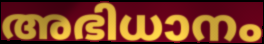
അഭിധാനം